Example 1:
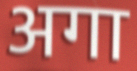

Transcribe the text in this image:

अगा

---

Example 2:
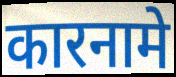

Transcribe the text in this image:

कारनामे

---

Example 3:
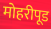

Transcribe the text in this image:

मोहरीपूड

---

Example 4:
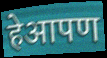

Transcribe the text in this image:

हेआपण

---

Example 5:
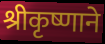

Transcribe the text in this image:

श्रीकृष्णाने